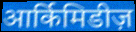
आर्किमिडीज़